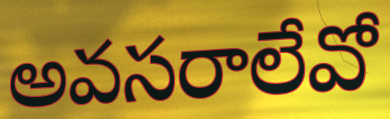
అవసరాలేవో